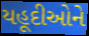
યહૂદીઓને